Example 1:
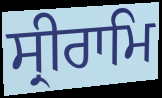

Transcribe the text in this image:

ਸ੍ਰੀਰਾਮਿ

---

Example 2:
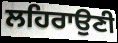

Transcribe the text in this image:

ਲਹਿਰਾਉਣੀ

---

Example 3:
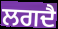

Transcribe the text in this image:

ਲਗਦੈ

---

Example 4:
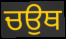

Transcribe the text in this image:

ਚਉਥ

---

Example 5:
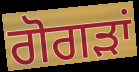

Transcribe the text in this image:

ਗੋਗੜਾਂ